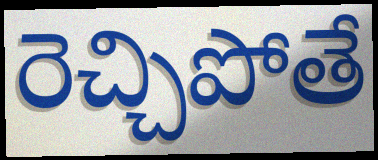
రెచ్చిపోతే